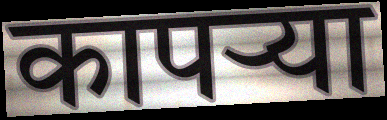
कापर्‍या